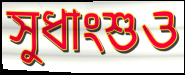
সুধাংশুও